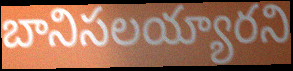
బానిసలయ్యారని